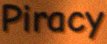
Piracy